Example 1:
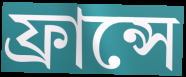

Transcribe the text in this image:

ফ্ৰান্সে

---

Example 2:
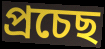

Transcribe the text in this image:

প্ৰচেছ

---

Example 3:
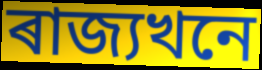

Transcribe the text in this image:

ৰাজ্যখনে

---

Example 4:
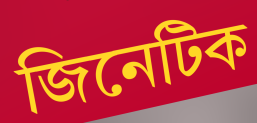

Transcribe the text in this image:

জিনেটিক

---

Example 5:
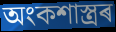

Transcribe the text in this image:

অংকশাস্ত্ৰৰ